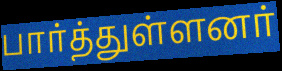
பார்த்துள்ளனர்